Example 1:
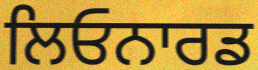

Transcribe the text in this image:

ਲਿਓਨਾਰਡ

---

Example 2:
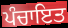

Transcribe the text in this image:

ਪੰਚਾਇਤ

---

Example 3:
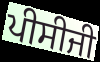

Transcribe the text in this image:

ਪੀਸੀਜੀ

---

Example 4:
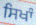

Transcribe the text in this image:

ਸਿਖਾੰ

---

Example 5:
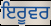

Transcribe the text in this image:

ਇਰੂਵਰ